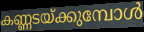
കണ്ണടയ്ക്കുമ്പോൾ